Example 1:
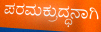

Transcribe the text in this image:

ಪರಮಕ್ರುದ್ಧನಾಗಿ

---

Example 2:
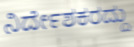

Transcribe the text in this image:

ನಿರ್ದೇಶಕರದ್ದು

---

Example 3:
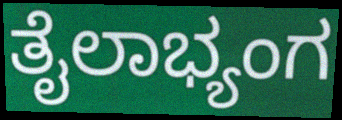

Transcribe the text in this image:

ತೈಲಾಭ್ಯಂಗ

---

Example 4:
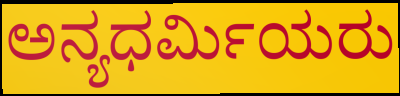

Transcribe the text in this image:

ಅನ್ಯಧರ್ಮಿಯರು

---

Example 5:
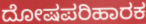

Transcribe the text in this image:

ದೋಷಪರಿಹಾರಕ